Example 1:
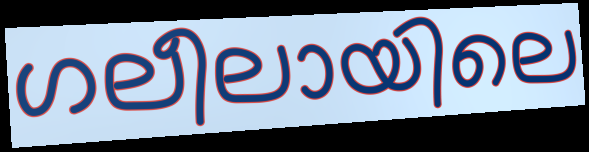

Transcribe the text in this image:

ഗലീലായിലെ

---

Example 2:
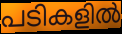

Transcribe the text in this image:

പടികളിൽ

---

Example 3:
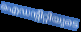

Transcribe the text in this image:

ഐഡന്റിറ്റിയുടെ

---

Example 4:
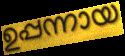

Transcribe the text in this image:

ഉപ്പന്നായ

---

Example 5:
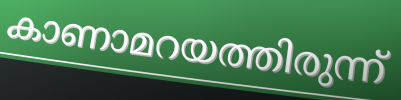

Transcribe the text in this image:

കാണാമറയത്തിരുന്ന്